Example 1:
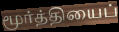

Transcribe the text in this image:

மூர்த்தியைப்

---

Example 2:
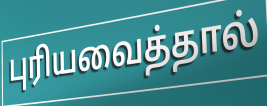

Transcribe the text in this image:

புரியவைத்தால்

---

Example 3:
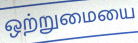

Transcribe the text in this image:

ஒற்றுமையை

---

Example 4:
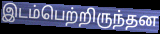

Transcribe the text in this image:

இடம்பெற்றிருந்தன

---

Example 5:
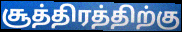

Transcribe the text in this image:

சூத்திரத்திற்கு